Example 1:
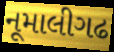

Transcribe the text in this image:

નૂમાલીગઢ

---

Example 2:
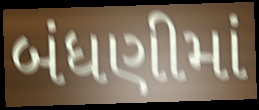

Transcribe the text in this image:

બંધણીમાં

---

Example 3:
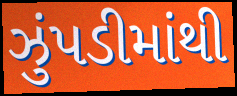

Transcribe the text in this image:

ઝુંપડીમાંથી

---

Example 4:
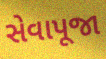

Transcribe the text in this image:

સેવાપૂજા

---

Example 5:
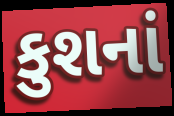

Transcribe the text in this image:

કુશનાં